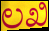
ಲಖಿ